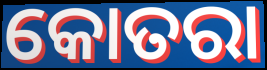
କୋତରା